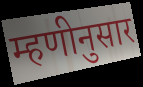
म्हणीनुसार